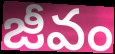
జీవం